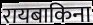
रायबाकिना